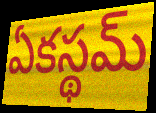
ఏకస్థమ్